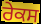
ਰੇਕਸ